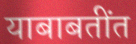
याबाबतींत